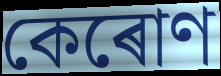
কেৰোণ